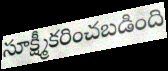
సూక్ష్మీకరించబడింది